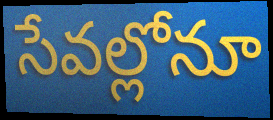
సేవల్లోనూ